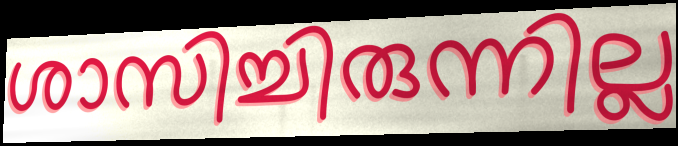
ശാസിച്ചിരുന്നില്ല